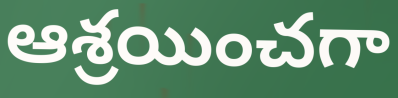
ఆశ్రయించగా